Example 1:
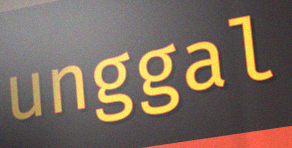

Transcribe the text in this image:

unggal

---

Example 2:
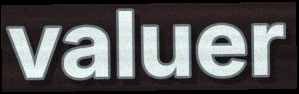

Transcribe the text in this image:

valuer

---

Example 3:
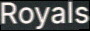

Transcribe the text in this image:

Royals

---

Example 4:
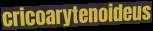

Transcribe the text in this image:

cricoarytenoideus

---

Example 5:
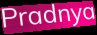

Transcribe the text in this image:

Pradnya